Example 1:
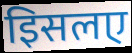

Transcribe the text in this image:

इिसलए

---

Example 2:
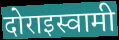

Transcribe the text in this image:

दोराइस्वामी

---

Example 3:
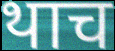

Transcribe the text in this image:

थाच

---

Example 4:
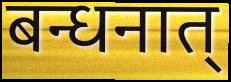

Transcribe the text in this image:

बन्धनात्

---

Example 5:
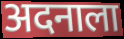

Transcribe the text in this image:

अदनाला